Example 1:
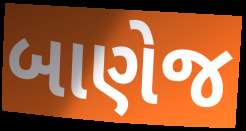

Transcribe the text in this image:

બાણેજ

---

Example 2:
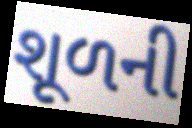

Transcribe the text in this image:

શૂળની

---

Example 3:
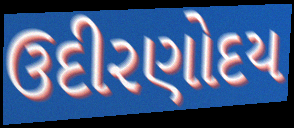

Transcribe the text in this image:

ઉદીરણોદય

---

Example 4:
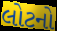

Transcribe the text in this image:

લોટનો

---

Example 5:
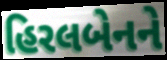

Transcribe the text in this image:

હિરલબેનને